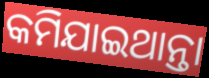
କମିଯାଇଥାନ୍ତା